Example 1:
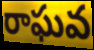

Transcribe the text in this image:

రాఘవ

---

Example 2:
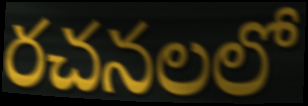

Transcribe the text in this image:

రచనలలో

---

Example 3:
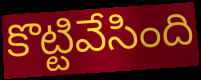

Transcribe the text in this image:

కొట్టివేసింది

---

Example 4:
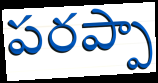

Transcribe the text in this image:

పరప్పా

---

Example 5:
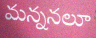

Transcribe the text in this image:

మన్ననలూ